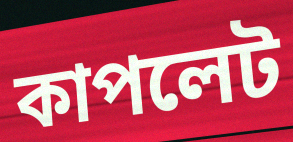
কাপলেট